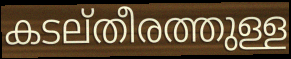
കടല്തീരത്തുള്ള